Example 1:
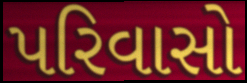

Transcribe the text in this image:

પરિવાસો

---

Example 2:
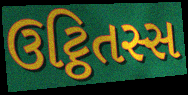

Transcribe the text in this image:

ઉટ્ઠિતસ્સ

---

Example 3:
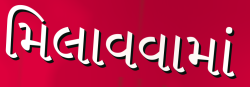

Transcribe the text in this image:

મિલાવવામાં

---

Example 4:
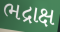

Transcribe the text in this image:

ભદ્રાક્ષ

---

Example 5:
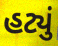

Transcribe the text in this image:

હટ્યું